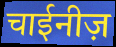
चाईनीज़